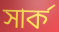
সার্ক